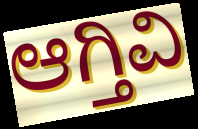
ಆಗ್ತಿವಿ